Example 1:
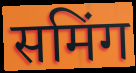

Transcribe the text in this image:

समिंग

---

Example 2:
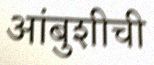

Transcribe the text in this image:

आंबुशीची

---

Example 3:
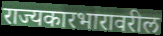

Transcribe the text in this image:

राज्यकारभारावरील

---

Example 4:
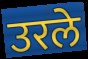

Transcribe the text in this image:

उरले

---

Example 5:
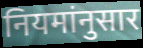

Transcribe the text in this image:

नियमांनुसार